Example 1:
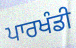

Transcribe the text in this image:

ਪਾਰਖੰਡੀ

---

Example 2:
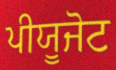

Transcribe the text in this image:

ਪੀਯੂਜੋਟ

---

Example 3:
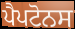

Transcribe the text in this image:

ਪੈਪਟੋਨਸ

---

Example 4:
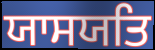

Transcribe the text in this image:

ਯਾਸਯਤਿ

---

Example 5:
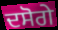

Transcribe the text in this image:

ਦਸੋਗੇ